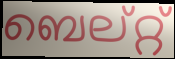
ബെല്റ്റ്